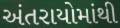
અંતરાયોમાંથી